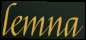
lemna